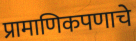
प्रामाणिकपणाचे